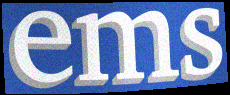
ems